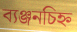
ব্যঞ্জনচিহ্ন